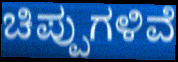
ಚಿಪ್ಪುಗಳಿವೆ